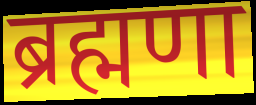
ब्रह्मणा